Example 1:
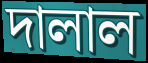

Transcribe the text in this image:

দালাল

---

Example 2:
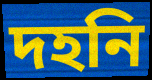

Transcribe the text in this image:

দহনি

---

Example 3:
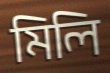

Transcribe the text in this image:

মিলি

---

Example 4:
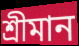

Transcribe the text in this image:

শ্ৰীমান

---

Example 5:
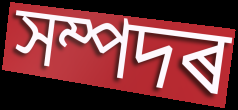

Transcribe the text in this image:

সম্পদৰ